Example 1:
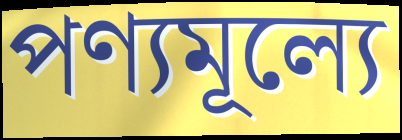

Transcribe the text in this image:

পণ্যমূল্যে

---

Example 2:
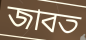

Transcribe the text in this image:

জাবত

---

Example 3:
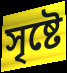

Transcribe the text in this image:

সৃষ্টে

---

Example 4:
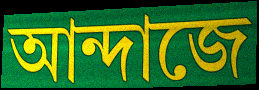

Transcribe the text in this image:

আন্দাজে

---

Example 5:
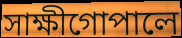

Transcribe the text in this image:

সাক্ষীগোপালে